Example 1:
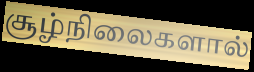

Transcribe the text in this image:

சூழ்நிலைகளால்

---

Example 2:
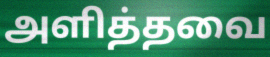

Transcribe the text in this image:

அளித்தவை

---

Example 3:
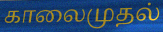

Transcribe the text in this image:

காலைமுதல்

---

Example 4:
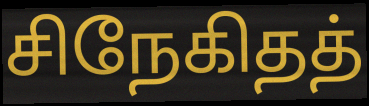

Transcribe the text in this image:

சிநேகிதத்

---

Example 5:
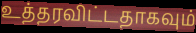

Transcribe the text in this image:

உத்தரவிட்டதாகவும்